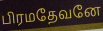
பிரமதேவனே